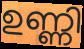
ഉണ്ണി